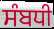
ਸੰਬਧੀ